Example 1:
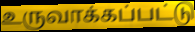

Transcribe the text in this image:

உருவாக்கப்பட்டு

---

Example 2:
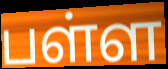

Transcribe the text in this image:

பள்ள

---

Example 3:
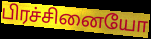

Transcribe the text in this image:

பிரச்சினையோ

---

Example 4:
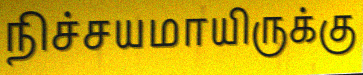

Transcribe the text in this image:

நிச்சயமாயிருக்கு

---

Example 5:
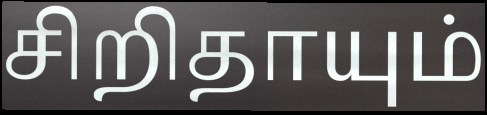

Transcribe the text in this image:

சிறிதாயும்